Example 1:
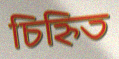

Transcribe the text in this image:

চিহ্নিত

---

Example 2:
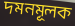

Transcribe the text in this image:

দমনমূলক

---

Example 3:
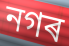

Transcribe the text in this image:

নগৰ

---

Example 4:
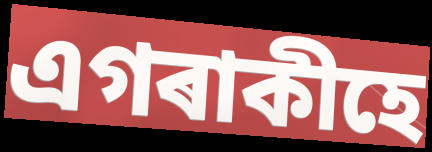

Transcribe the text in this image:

এগৰাকীহে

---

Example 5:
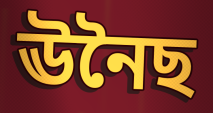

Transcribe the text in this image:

ঊনৈছ